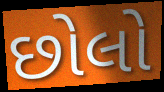
છોલો